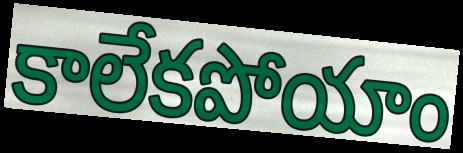
కాలేకపోయాం